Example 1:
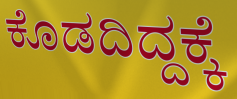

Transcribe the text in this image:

ಕೊಡದಿದ್ದಕ್ಕೆ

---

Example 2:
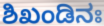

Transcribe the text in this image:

ಶಿಖಂಡಿನಃ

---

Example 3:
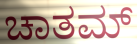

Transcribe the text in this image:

ಚಾತಮ್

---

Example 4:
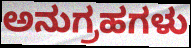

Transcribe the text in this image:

ಅನುಗ್ರಹಗಳು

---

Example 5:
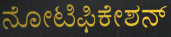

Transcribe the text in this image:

ನೋಟಿಫಿಕೇಶನ್